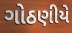
ગોઠણીયે